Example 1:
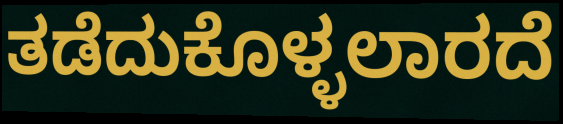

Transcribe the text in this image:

ತಡೆದುಕೊಳ್ಳಲಾರದೆ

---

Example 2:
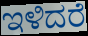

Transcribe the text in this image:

ಇಳಿದರೆ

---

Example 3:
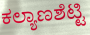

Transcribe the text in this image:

ಕಲ್ಯಾಣಶೆಟ್ಟಿ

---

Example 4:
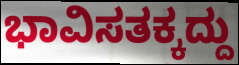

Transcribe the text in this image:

ಭಾವಿಸತಕ್ಕದ್ದು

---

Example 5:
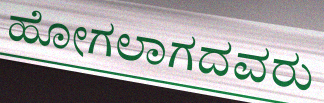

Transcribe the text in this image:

ಹೋಗಲಾಗದವರು